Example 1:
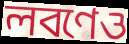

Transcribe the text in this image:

লবণেও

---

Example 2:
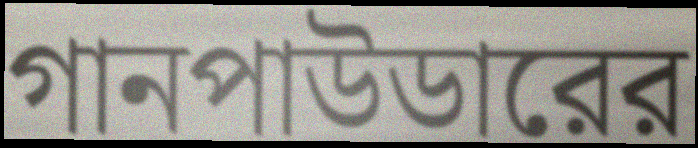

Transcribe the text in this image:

গানপাউডারের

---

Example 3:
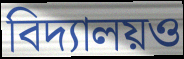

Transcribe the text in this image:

বিদ্যালয়ও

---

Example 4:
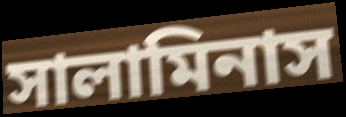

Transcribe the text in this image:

সালামিনাস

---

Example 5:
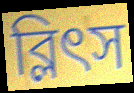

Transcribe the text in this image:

ব্লিৎস